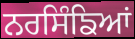
ਨਰਸਿੰਙਿਆਂ